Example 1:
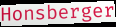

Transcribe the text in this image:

Honsberger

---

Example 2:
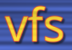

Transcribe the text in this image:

vfs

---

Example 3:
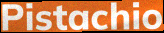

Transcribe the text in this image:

Pistachio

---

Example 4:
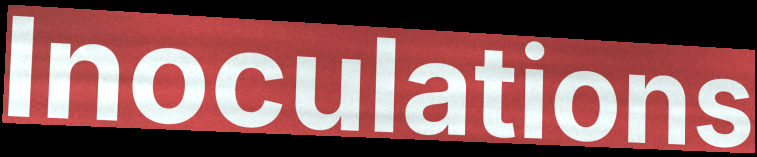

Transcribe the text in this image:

Inoculations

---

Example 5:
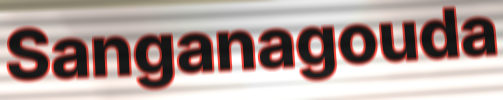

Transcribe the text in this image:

Sanganagouda